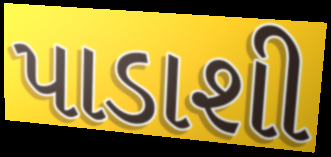
પાડાશી